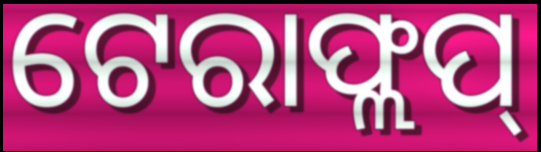
ଟେରାଫ୍ଲପ୍